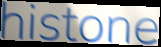
histone